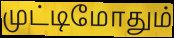
முட்டிமோதும்